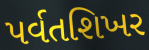
પર્વતશિખર